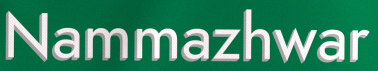
Nammazhwar